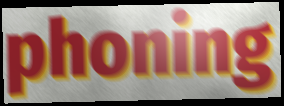
phoning